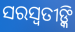
ସରସ୍ୱତୀଙ୍କି